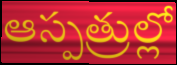
ఆస్పత్రుల్లో